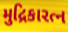
મુદ્રિકારત્ન